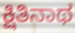
ಕ್ಷಿತಿನಾಥ